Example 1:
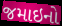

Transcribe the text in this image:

જમાઇનો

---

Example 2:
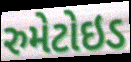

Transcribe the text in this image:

રુમેટોઇડ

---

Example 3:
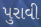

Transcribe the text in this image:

પુરાવી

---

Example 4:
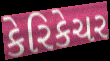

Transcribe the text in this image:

કેરિકેચર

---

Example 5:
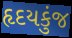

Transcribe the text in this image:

હૃદયકુંજ